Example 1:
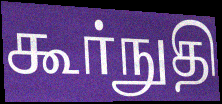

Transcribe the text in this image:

கூர்நுதி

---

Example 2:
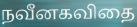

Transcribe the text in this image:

நவீனகவிதை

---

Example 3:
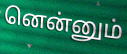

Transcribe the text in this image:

னென்னும்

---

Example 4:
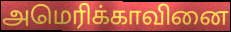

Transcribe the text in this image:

அமெரிக்காவினை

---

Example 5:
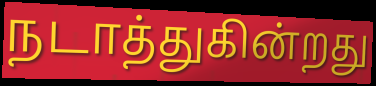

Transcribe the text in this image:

நடாத்துகின்றது